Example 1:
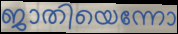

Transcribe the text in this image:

ജാതിയെന്നോ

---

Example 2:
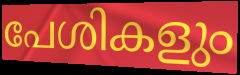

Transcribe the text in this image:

പേശികളും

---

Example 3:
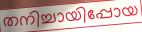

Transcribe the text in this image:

തനിച്ചായിപ്പോയ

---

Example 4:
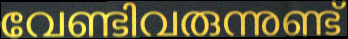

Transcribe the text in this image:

വേണ്ടിവരുന്നുണ്ട്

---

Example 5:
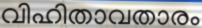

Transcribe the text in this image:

വിഹിതാവതാരം